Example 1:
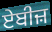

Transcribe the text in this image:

ਏਬੀਜ਼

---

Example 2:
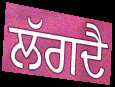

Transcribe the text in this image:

ਲੱਗਦੈ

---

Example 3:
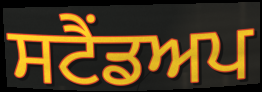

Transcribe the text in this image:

ਸਟੈਂਡਅਪ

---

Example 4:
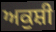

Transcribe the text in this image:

ਅਕੁਸ਼ੀ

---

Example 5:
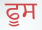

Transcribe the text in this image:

ਫੂਸ